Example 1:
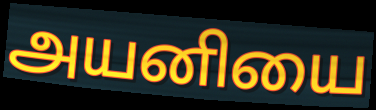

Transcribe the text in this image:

அயனியை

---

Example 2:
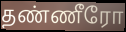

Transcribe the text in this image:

தண்ணீரோ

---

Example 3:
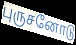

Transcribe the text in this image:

புருசனோடு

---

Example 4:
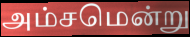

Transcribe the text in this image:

அம்சமென்று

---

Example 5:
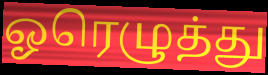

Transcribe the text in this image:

ஓரெழுத்து